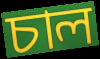
চাল